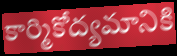
కార్మికోద్యమానికి